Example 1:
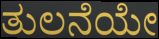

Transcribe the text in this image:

ತುಲನೆಯೇ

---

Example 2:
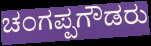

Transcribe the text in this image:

ಚಂಗಪ್ಪಗೌಡರು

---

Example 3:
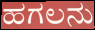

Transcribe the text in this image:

ಹಗಲನು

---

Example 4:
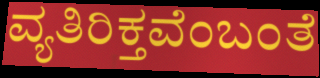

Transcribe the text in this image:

ವ್ಯತಿರಿಕ್ತವೆಂಬಂತೆ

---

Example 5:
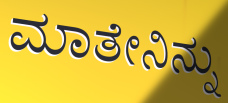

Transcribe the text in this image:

ಮಾತೇನಿನ್ನು